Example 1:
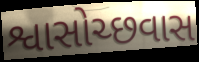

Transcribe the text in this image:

શ્વાસોચ્છવાસ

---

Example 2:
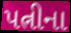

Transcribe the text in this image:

પત્નીના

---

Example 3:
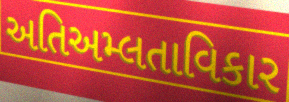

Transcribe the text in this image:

અતિઅમ્લતાવિકાર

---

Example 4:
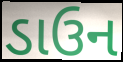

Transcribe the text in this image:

ડાઉન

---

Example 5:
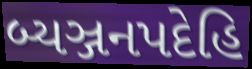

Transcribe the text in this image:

બ્યઞ્જનપદેહિ